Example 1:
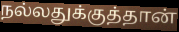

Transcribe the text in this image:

நல்லதுக்குத்தான்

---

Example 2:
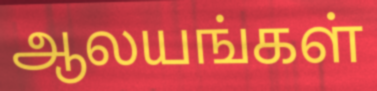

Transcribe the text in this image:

ஆலயங்கள்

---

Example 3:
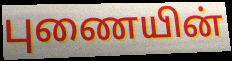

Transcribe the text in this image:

புணையின்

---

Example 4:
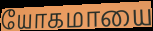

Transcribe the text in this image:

யோகமாயை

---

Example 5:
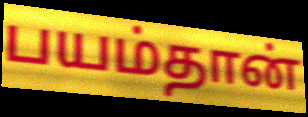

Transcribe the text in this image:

பயம்தான்